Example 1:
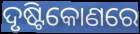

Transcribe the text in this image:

ଦୃଷ୍ଟିକୋଣରେ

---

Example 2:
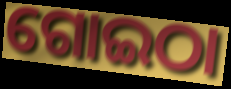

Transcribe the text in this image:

ଗୋଇଠା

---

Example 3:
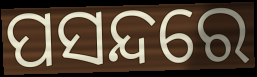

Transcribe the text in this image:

ପସନ୍ଦରେ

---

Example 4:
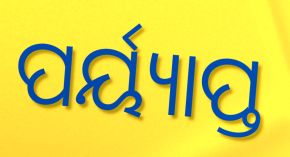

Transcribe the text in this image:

ପର୍ୟ୍ୟାପ୍ତ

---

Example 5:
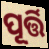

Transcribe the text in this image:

ପୂର୍ତ୍ତି